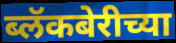
ब्लॅकबेरीच्या